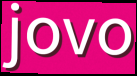
jovo